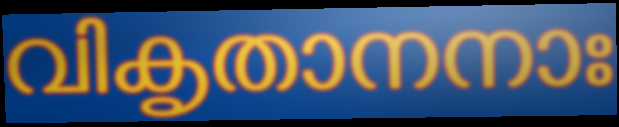
വികൃതാനനാഃ